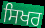
ਸਿਖਰ